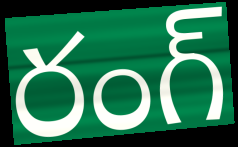
రంగ్